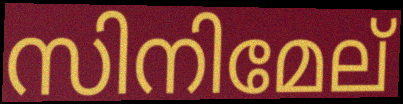
സിനിമേല്